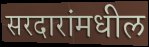
सरदारांमधील